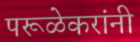
परूळेकरांनी